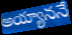
అయ్యాననే